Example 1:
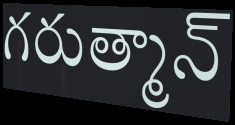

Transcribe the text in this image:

గరుత్మాన్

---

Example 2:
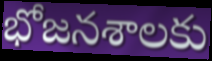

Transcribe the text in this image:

భోజనశాలకు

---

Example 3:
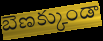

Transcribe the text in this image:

బెణక్కుండా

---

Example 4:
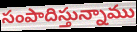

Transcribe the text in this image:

సంపాదిస్తున్నాము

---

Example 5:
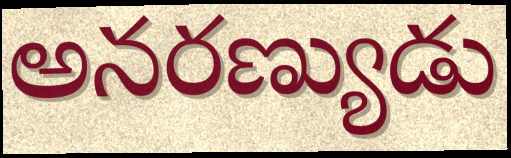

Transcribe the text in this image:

అనరణ్యుడు